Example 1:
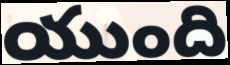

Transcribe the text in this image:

యుంది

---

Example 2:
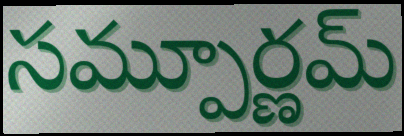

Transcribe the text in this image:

సమ్పూర్ణమ్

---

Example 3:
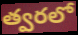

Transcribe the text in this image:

త్వరలో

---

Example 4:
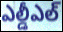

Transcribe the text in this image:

ఎల్డీఎల్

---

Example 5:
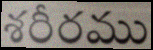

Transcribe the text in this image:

శరీరము